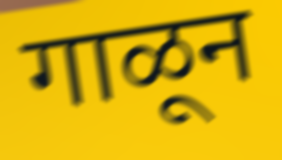
गाळून